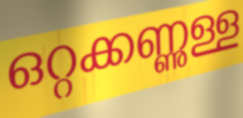
ഒറ്റക്കണ്ണുള്ള